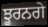
ਝੂਰਨਗੇ